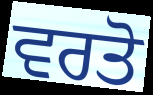
ਵਰਤੋ